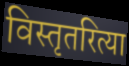
विस्तृतरित्या